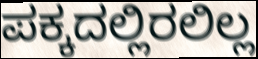
ಪಕ್ಕದಲ್ಲಿರಲಿಲ್ಲ